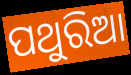
ପଥୁରିଆ